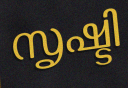
സൃഷ്ടി